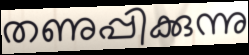
തണുപ്പിക്കുന്നു